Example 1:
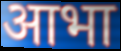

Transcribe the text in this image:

आभा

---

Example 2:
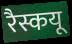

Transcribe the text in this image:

रैस्कयू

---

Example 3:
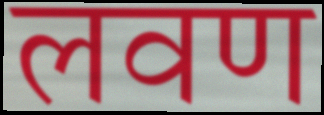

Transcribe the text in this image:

लवण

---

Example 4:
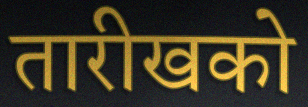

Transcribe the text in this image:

तारीखको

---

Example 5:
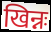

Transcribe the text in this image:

खिन्नः